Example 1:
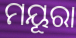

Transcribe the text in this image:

ମୟୂରା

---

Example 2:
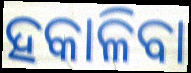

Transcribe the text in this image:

ହକାଳିବା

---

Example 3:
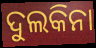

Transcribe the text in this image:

ଦୁଲକିନା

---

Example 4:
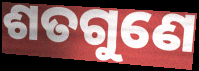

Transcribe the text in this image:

ଶତଗୁଣେ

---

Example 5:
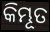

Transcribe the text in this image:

କିମ୍ଭୂତ